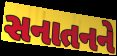
સનાતનને